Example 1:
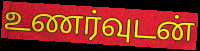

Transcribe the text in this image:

உணர்வுடன்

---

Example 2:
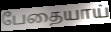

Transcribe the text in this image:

பேதையாய்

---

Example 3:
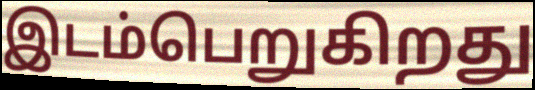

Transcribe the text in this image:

இடம்பெறுகிறது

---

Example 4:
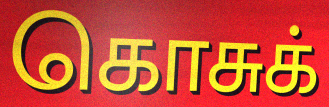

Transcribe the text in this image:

கொசுக்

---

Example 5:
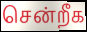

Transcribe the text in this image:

சென்றீக